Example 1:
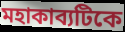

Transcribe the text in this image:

মহাকাব্যটিকে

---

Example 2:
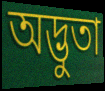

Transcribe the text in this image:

অদ্ভুতা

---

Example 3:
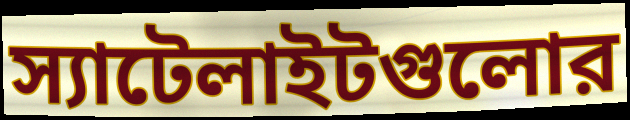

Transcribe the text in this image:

স্যাটেলাইটগুলোর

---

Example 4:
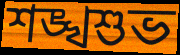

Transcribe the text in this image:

শঙ্খশুভ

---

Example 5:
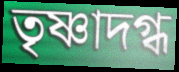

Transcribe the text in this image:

তৃষ্ণাদগ্ধ